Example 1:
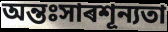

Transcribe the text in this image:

অন্তঃসাৰশূন্যতা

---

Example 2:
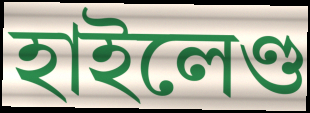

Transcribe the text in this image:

হাইলেণ্ড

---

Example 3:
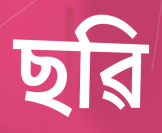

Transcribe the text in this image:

ছৱি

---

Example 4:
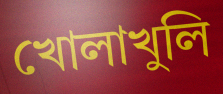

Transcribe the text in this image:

খোলাখুলি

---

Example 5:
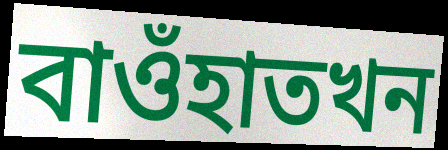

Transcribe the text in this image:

বাওঁহাতখন